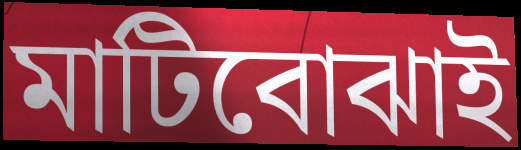
মাটিবোঝাই